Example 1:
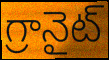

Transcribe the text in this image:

గ్రానైట్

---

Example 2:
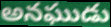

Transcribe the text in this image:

అనఘుడు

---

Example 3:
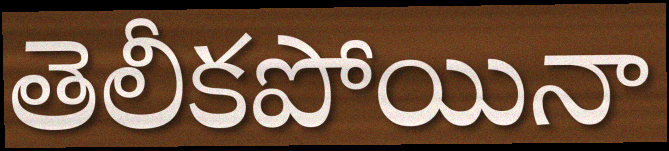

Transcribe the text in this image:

తెలీకపోయినా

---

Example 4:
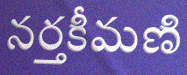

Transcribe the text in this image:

నర్తకీమణి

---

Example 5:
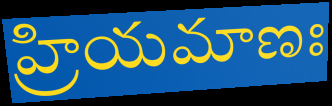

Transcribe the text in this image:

హ్రియమాణః